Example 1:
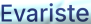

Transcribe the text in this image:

Evariste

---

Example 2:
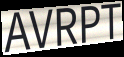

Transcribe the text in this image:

AVRPT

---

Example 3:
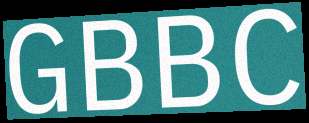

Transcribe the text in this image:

GBBC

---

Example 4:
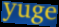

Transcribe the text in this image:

yuge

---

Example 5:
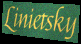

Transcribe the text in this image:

Linietsky